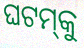
ଘଟମ୍‌କୁ